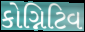
કોગ્નિટિવ